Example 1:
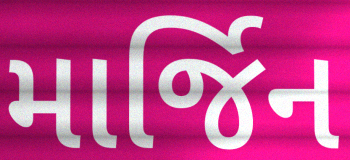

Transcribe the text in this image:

માર્જિન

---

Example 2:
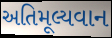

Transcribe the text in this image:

અતિમૂલ્યવાન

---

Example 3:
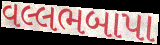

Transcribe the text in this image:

વલ્લભબાપા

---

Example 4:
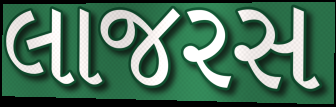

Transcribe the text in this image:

લાજરસ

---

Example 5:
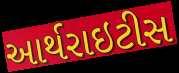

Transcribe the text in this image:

આર્થરાઇટીસ